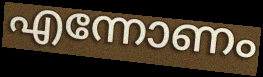
എന്നോണം